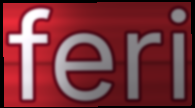
feri